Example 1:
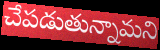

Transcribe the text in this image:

చేపడుతున్నామని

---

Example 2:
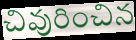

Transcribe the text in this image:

చివురించిన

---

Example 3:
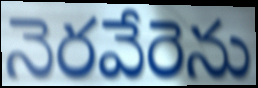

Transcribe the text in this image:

నెరవేరెను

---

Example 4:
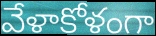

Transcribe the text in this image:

వేళాకోళంగా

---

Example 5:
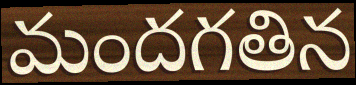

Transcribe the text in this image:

మందగతిన